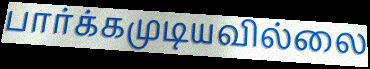
பார்க்கமுடியவில்லை